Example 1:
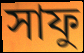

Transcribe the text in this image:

সাফু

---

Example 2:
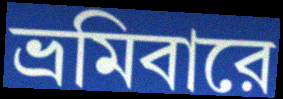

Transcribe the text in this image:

ভ্রমিবারে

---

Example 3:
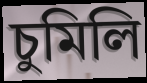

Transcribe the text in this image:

চুমিলি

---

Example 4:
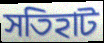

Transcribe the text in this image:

সতিহাট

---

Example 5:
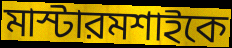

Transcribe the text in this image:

মাস্টারমশাইকে